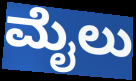
ಮೈಲು